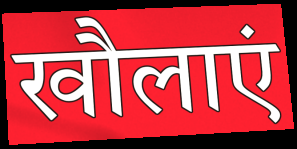
खौलाएं